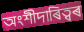
অংশীদাৰিত্বৰ